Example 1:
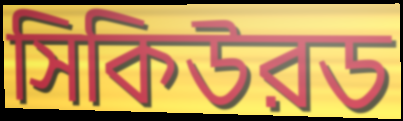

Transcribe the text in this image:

সিকিউরড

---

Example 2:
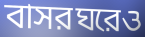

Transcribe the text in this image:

বাসরঘরেও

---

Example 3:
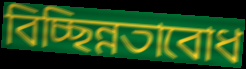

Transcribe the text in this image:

বিচ্ছিন্নতাবোধ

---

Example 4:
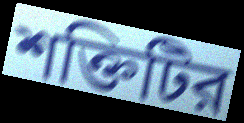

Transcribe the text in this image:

শক্তিটির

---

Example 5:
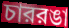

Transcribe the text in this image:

চাররঙা